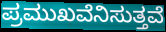
ಪ್ರಮುಖವೆನಿಸುತ್ತವೆ